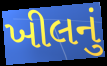
ખીલનું